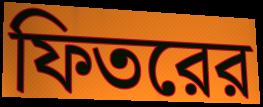
ফিতরের